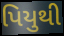
પિયુથી